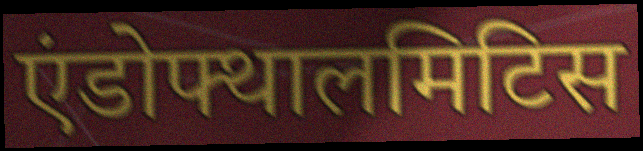
एंडोफ्थालमिटिस